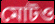
মোটও